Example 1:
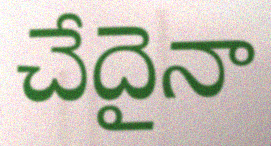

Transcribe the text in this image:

చేదైనా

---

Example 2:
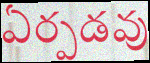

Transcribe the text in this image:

ఏర్పడవు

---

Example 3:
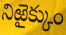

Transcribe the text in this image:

నిఱైక్కుం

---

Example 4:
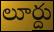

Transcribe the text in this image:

లూర్దు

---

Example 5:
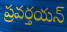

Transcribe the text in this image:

ప్రవర్తయన్